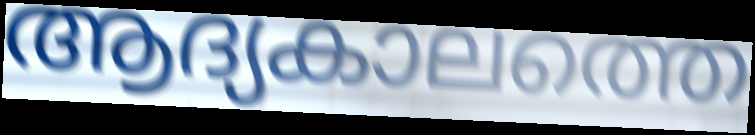
ആദ്യകാലത്തെ